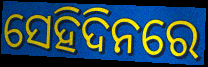
ସେହିଦିନରେ